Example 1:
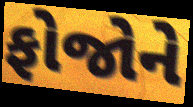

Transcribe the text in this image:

ફોજોને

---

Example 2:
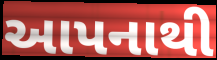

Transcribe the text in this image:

આપનાથી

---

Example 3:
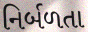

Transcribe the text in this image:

નિર્બળતા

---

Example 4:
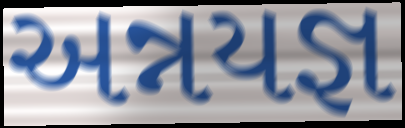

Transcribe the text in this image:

અન્નયજ્ઞ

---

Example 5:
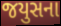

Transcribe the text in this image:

જયુસના